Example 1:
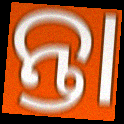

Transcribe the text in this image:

ନ୍ତା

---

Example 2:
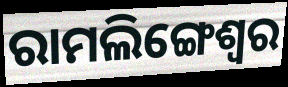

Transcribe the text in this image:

ରାମଲିଙ୍ଗେଶ୍ୱର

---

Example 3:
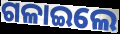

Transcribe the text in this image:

ଗଳାଇଲେ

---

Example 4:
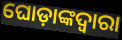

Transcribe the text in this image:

ଘୋଡ଼ାଙ୍କଦ୍ୱାରା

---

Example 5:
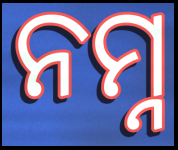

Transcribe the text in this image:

ନମ୍ନ